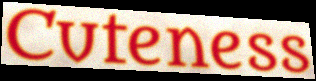
Cuteness